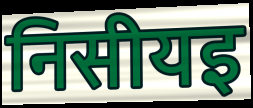
निसीयइ